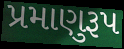
પ્રમાણુરૂપ